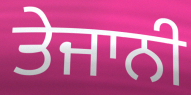
ਤੇਜਾਨੀ